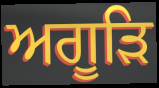
ਅਗੂੜਿ